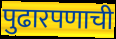
पुढारपणाची